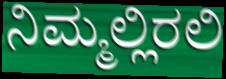
ನಿಮ್ಮಲ್ಲಿರಲಿ